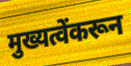
मुख्यत्वेंकरून